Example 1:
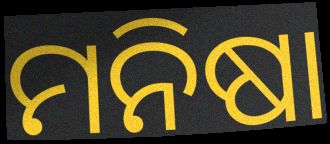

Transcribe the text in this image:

ମନିଷା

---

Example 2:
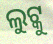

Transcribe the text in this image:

ଲୁଟ୍କୁ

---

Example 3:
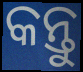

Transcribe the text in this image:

କନ୍ତୁ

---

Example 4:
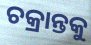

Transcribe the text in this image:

ଚକ୍ରାନ୍ତକୁ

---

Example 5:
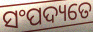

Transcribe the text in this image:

ସଂପଦ୍ୟତେ